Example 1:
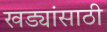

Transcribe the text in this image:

खड्यांसाठी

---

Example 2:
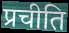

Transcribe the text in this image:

प्रचीति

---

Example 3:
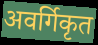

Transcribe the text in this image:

अवर्गिकृत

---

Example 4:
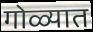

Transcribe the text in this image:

गोळ्यात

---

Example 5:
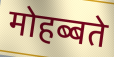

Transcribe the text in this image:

मोहब्बते